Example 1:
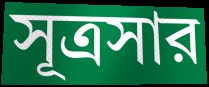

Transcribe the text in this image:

সূত্রসার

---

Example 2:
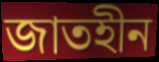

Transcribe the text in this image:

জাতহীন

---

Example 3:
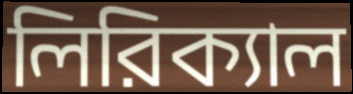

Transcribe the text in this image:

লিরিক্যাল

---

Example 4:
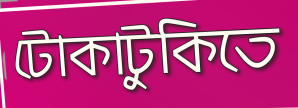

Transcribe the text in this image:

টোকাটুকিতে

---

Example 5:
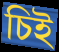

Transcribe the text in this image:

চিই